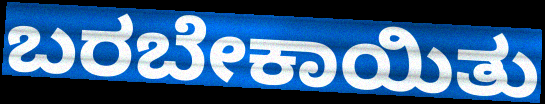
ಬರಬೇಕಾಯಿತು